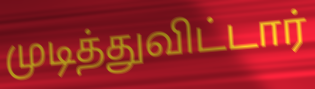
முடித்துவிட்டார்